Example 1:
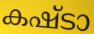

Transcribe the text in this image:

കഷ്ടാ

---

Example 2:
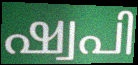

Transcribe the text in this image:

ഷ്വപി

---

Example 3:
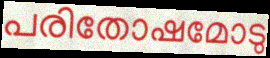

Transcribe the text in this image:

പരിതോഷമോടു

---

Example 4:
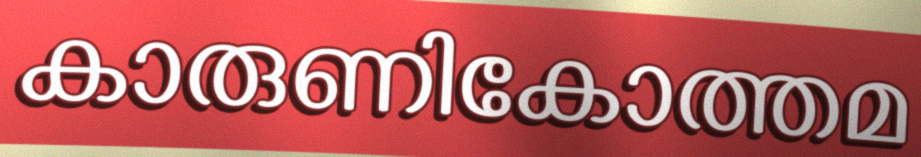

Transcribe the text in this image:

കാരുണികോത്തമ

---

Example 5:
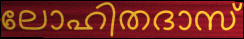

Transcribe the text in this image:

ലോഹിതദാസ്